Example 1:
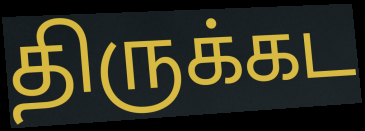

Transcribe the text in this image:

திருக்கட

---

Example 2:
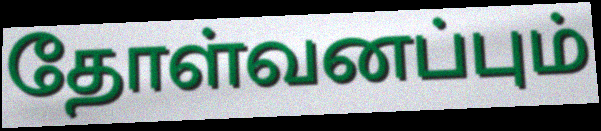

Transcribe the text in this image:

தோள்வனப்பும்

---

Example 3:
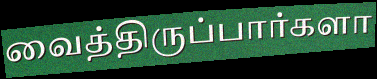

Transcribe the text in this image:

வைத்திருப்பார்களா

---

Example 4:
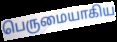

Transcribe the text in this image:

பெருமையாகிய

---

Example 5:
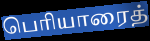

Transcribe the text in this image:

பெரியாரைத்